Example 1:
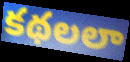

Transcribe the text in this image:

కథలలా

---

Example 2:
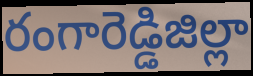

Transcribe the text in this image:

రంగారెడ్డిజిల్లా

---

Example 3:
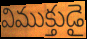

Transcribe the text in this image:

విముక్తుడై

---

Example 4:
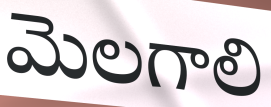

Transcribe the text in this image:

మెలగాలి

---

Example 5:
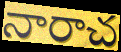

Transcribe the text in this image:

నారాచ